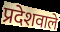
प्रदेशवाले